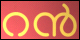
റൻ